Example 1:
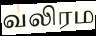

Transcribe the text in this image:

வலிரம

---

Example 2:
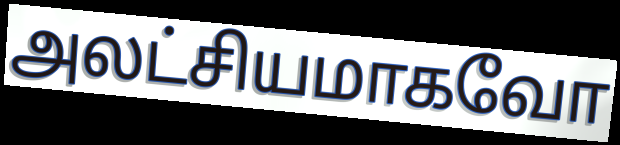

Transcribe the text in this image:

அலட்சியமாகவோ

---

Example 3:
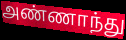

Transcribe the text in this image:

அண்ணாந்து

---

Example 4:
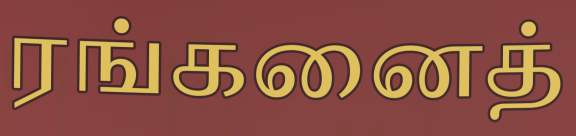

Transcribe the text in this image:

ரங்கனைத்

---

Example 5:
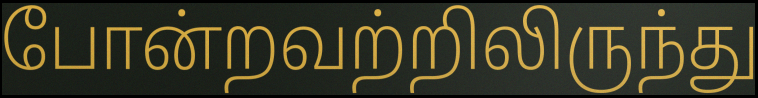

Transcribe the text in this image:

போன்றவற்றிலிருந்து